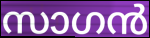
സാഗൻ